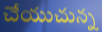
చేయుచున్న